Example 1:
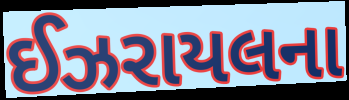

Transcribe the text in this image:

ઈઝરાયલના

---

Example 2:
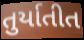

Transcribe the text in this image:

તુર્યાતીત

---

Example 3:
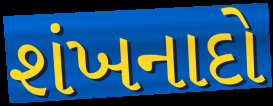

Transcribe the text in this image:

શંખનાદો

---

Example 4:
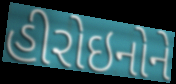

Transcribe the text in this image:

હીરોઇનોને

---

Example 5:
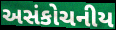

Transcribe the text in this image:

અસંકોચનીય